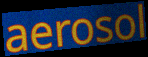
aerosol